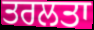
ਤਰਲਤਾ